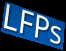
LFPs